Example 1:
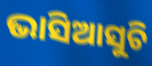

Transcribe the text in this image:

ଭାସିଆସୁଚି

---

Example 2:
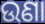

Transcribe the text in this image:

ଉଣା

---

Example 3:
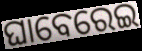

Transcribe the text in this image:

ଘାବେରେଇ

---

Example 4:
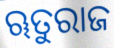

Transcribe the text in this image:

ୠତୁରାଜ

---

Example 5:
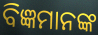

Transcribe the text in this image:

ବିଜ୍ଞମାନଙ୍କ